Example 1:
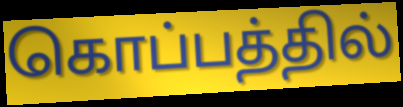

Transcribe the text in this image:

கொப்பத்தில்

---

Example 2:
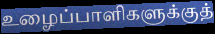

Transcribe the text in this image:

உழைப்பாளிகளுக்குத்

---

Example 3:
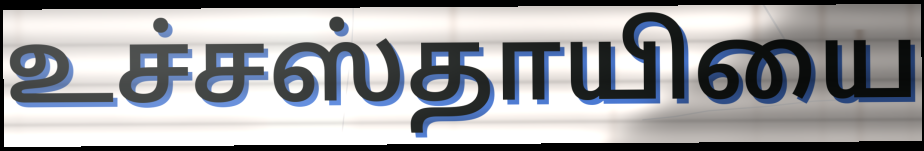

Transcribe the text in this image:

உச்சஸ்தாயியை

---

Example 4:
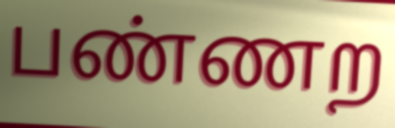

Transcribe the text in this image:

பண்ணற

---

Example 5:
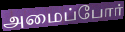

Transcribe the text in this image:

அமைப்போர்